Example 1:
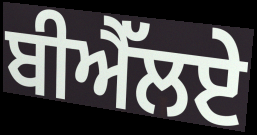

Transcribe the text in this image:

ਬੀਐੱਲਏ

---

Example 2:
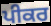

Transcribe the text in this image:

ਪੀਕਰ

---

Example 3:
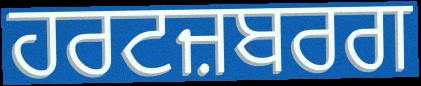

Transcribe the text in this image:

ਹਰਟਜ਼ਬਰਗ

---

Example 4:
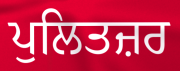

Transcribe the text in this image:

ਪੁਲਿਤਜ਼ਰ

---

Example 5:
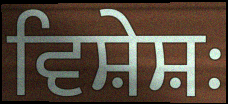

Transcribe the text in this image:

ਵਿਸ਼ੇਸ਼ਃ